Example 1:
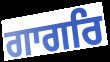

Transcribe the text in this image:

ਗਾਗਰਿ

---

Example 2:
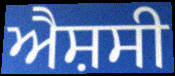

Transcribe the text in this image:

ਐਸ਼ਸੀ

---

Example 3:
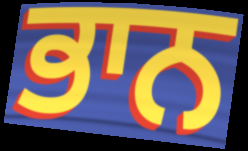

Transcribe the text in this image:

ਭਾਨ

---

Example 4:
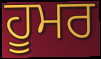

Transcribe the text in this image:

ਹੂਮਰ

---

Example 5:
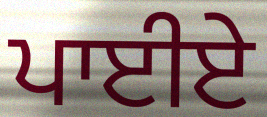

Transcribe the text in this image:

ਪਾਈਏ